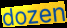
dozen